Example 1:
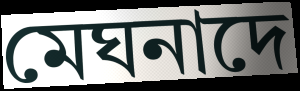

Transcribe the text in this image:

মেঘনাদে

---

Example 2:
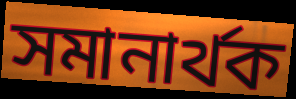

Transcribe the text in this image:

সমানার্থক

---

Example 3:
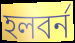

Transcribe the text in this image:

হলবর্ন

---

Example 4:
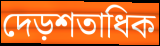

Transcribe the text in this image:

দেড়শতাধিক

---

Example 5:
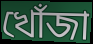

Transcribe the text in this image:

খোঁজা